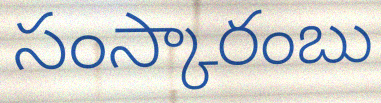
సంస్కారంబు